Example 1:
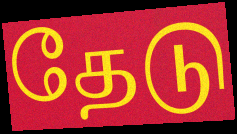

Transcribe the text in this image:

தேடு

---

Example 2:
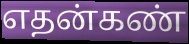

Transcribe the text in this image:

எதன்கண்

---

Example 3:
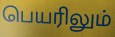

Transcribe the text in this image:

பெயரிலும்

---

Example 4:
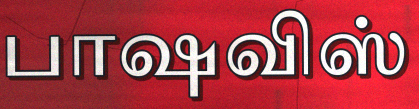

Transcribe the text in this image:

பாஷவிஸ்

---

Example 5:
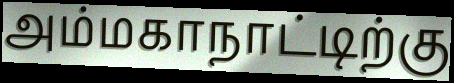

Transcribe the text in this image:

அம்மகாநாட்டிற்கு